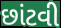
છાંટવી